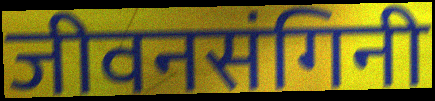
जीवनसंगिनी